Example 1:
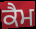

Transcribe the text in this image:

ਕੈਮ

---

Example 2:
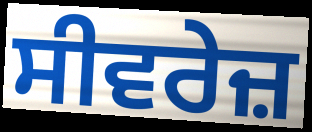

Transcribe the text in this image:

ਸੀਵਰੇਜ਼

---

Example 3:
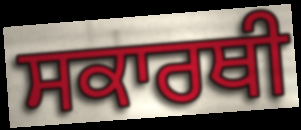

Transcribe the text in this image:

ਸਕਾਰਥੀ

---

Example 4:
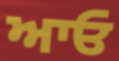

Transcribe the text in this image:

ਆਓ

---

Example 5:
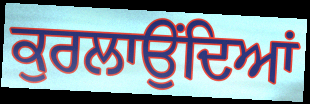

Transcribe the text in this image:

ਕੁਰਲਾਉਂਦਿਆਂ